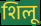
शिलू